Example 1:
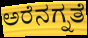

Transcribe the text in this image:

ಅರೆನಗ್ನತೆ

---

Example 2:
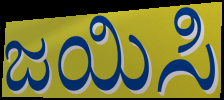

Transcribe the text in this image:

ಜಯಿಸಿ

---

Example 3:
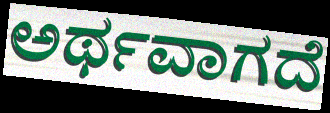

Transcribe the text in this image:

ಅರ್ಥವಾಗದೆ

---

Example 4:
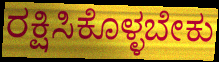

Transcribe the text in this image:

ರಕ್ಷಿಸಿಕೊಳ್ಳಬೇಕು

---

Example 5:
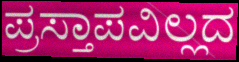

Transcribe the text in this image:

ಪ್ರಸ್ತಾಪವಿಲ್ಲದ